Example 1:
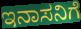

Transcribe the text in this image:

ಇನಾಸನಿಗೆ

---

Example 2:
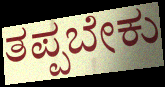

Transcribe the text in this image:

ತಪ್ಪಬೇಕು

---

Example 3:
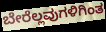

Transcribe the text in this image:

ಬೇರೆಲ್ಲವುಗಳಿಗಿಂತ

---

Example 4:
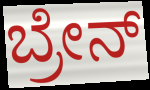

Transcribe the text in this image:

ಬ್ರೇನ್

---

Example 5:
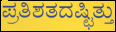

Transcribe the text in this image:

ಪ್ರತಿಶತದಷ್ಟಿತ್ತು